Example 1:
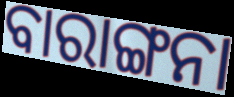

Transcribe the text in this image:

ବାରାଙ୍ଗନା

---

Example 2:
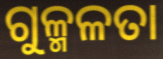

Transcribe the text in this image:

ଗୁଳ୍ମଳତା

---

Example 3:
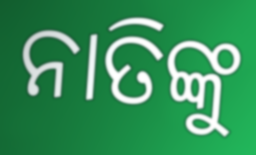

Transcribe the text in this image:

ନାତିଙ୍କୁ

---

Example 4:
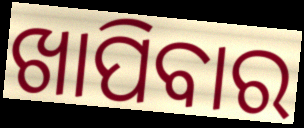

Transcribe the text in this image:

ଖାପିବାର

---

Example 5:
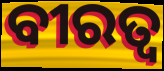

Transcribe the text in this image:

ବୀରତ୍ଵ